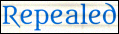
Repealed